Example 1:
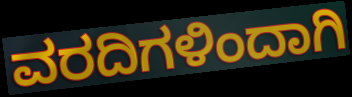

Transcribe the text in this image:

ವರದಿಗಳಿಂದಾಗಿ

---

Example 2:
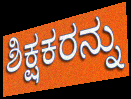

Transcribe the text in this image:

ಶಿಕ್ಷಕರನ್ನು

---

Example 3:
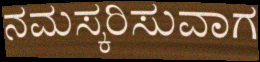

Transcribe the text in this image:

ನಮಸ್ಕರಿಸುವಾಗ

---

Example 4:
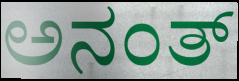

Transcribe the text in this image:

ಅನಂತ್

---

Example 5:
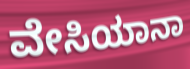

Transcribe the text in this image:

ವೇಸಿಯಾನಾ